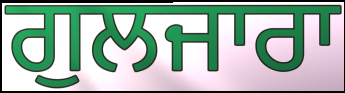
ਗੁਲਜਾਰਾ